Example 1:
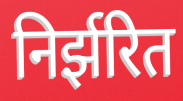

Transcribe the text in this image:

निर्झरित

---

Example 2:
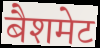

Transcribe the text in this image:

बैशमेट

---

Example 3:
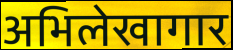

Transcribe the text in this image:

अभिलेखागार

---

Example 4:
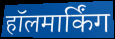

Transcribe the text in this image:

हॉलमार्किंग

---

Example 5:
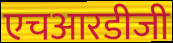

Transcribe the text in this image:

एचआरडीजी